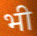
भी